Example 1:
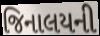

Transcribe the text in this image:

જિનાલયની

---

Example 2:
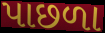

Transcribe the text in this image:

પાછળા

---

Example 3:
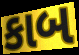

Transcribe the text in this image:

કાબ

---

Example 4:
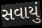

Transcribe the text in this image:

સવાયું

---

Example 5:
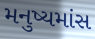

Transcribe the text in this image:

મનુષ્યમાંસ